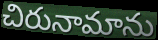
చిరునామాను